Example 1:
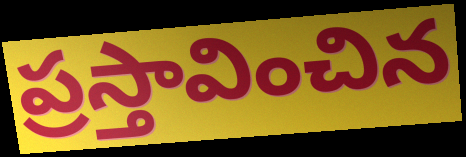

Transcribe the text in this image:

ప్రస్తావించిన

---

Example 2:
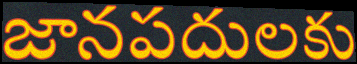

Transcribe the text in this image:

జానపదులకు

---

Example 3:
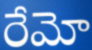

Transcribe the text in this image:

రేమో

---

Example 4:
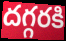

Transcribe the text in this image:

దగ్గరకి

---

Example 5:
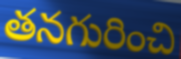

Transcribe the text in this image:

తనగురించి